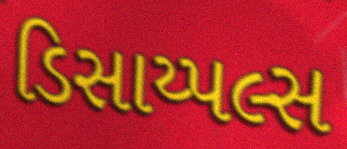
ડિસાય્પલ્સ